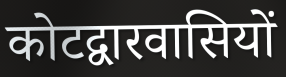
कोटद्वारवासियों